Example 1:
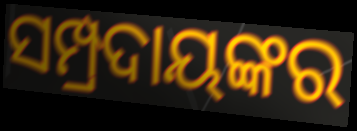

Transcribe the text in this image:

ସମ୍ପ୍ରଦାୟଙ୍କର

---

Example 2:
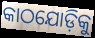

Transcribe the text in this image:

କାଠଯୋଡ଼ିକୁ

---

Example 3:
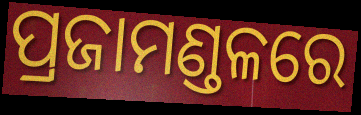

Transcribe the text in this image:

ପ୍ରଜାମଣ୍ଡଳରେ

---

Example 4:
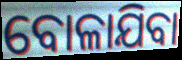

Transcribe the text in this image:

ବୋଳାଯିବା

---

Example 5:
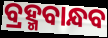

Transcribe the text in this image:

ବ୍ରହ୍ମବାନ୍ଧବ